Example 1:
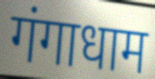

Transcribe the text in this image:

गंगाधाम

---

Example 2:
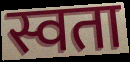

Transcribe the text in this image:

स्वता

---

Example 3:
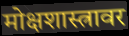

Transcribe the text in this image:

मोक्षशास्त्रावर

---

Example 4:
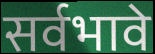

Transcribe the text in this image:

सर्वभावे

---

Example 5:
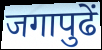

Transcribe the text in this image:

जगापुढें